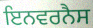
ਇਨਵਰਨੈਸ